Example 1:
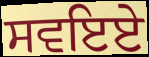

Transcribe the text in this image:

ਸਵਇਏ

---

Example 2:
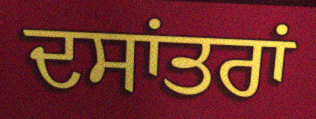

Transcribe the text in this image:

ਦਸਾਂਤਰਾਂ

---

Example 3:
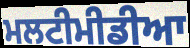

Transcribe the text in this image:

ਮਲਟੀਮੀਡੀਆ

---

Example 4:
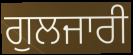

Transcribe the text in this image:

ਗੁਲਜਾਰੀ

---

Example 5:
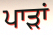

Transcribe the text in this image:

ਪਾੜਾਂ